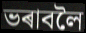
ভৰাবলৈ